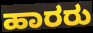
ಹಾರರು